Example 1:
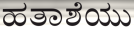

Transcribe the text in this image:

ಹತಾಶೆಯು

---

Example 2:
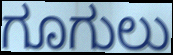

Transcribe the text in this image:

ಗೂಗುಲು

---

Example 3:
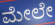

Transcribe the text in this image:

ಮೇಲೇ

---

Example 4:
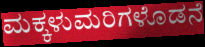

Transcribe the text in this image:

ಮಕ್ಕಳುಮರಿಗಳೊಡನೆ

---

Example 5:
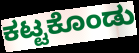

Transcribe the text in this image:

ಕಟ್ಟಕೊಂಡು